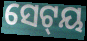
ସେଟ୍‌ୟ